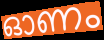
ഓണം